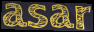
asar